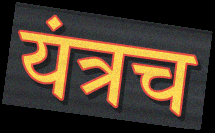
यंत्रच